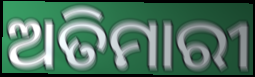
ଅତିମାରୀ